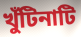
খুঁটিনাটি